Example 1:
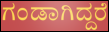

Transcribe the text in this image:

ಗಂಡಾಗಿದ್ದರೆ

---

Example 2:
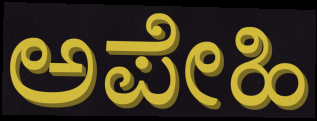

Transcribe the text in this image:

ಅಪೇಹಿ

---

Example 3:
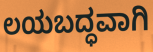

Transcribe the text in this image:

ಲಯಬದ್ಧವಾಗಿ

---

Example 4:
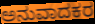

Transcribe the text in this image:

ಅನುವಾದಕರ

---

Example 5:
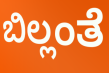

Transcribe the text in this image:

ಬಿಲ್ಲಂತೆ